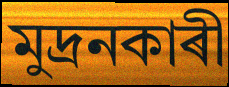
মুদ্ৰনকাৰী